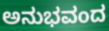
ಅನುಭವಂದ